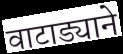
वाटाड्याने